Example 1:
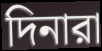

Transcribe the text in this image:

দিনারা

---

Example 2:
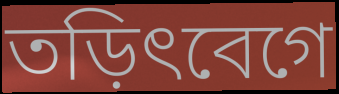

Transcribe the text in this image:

তড়িৎবেগে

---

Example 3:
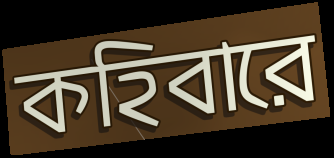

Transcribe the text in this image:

কহিবারে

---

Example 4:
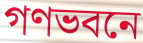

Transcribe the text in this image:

গণভবনে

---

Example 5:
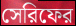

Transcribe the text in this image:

সেরিফের